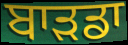
ਬਾੜਡਾ